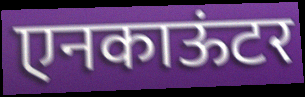
एनकाऊंटर